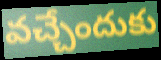
వచ్చేందుకు